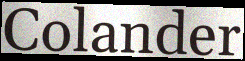
Colander